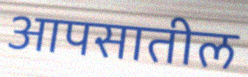
आपसातील